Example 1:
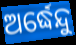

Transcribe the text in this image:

ଅର୍ଦ୍ଧେନ୍ଦୁ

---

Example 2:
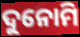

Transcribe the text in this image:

ଦୁନୋମି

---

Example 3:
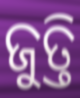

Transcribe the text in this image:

ଜୁତ୍ତି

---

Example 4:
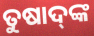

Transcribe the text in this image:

ତୁଷାଦ୍‌ଙ୍କ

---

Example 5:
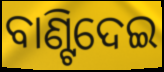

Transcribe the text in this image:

ବାଣ୍ଟିଦେଇ